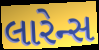
લારેન્સ